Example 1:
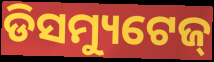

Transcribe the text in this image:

ଡିସମ୍ୟୁଟେଜ୍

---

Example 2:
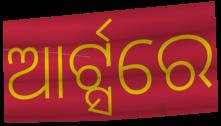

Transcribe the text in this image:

ଆର୍ଟ୍ସରେ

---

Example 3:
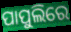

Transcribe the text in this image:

ପାପୁଲିରେ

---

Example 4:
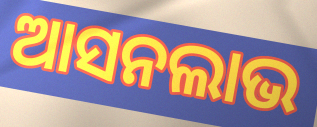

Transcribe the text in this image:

ଆସନଲାଭ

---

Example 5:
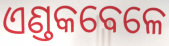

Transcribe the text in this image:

ଏଣ୍ଡକବେଳେ